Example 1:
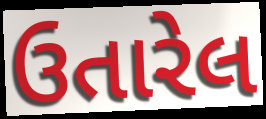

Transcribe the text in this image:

ઉતારેલ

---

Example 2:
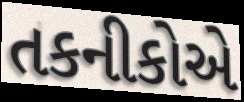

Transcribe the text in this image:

તકનીકોએ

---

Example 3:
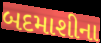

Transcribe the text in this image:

બદમાશીના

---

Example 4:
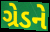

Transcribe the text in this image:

ગ્રેડને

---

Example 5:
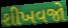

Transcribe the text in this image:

શીખવજો